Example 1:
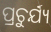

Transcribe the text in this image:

ପ୍ରଚୁର୍ଯ୍ୟ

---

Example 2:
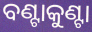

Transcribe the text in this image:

ବଣ୍ଟାକୁଣ୍ଟା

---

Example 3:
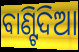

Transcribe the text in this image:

ବାଣ୍ଟିଦିଆ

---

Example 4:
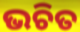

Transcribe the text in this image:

ଭଚିତ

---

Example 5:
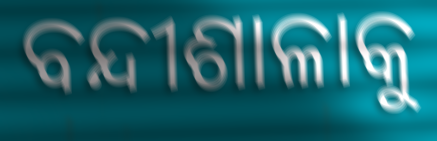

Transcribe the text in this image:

ବନ୍ଦୀଶାଳାକୁ